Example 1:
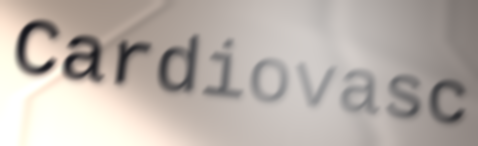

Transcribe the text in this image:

Cardiovasc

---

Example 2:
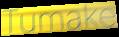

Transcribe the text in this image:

Tumake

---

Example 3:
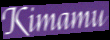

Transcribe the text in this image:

Kimamu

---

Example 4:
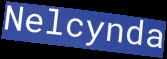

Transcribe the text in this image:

Nelcynda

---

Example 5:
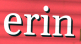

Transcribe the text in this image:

erin